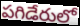
పగిడేరులో